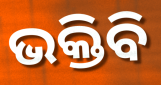
ଭକ୍ତିବି